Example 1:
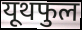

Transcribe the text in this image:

यूथफुल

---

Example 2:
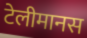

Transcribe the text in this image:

टेलीमानस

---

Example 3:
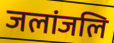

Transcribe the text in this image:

जलांजलि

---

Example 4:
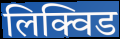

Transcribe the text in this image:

लिक्विड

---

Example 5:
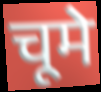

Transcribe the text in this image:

चूमे